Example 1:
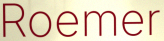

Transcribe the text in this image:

Roemer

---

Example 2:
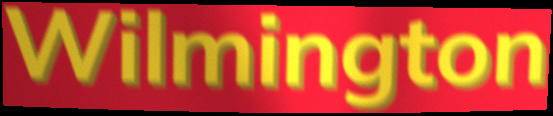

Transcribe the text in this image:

Wilmington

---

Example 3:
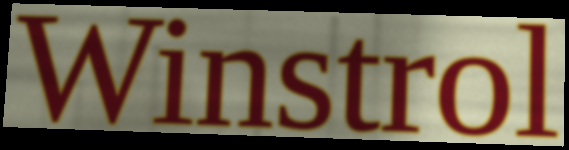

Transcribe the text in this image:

Winstrol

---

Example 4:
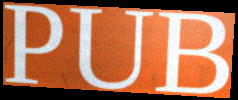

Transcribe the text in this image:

PUB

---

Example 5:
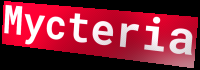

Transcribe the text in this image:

Mycteria